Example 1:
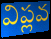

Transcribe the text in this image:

విప్లవ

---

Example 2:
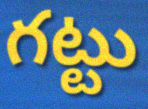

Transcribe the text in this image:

గట్టు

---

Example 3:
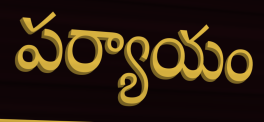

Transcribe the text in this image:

పర్యాయం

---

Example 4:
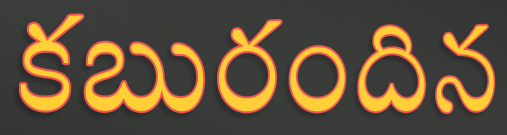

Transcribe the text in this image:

కబురందిన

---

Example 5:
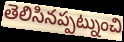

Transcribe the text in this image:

తెలిసినప్పట్నుంచి